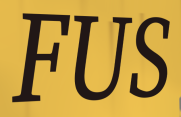
FUS